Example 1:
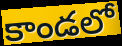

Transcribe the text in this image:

కాండలో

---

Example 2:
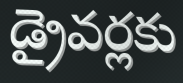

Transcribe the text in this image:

డ్రైవర్లకు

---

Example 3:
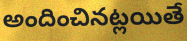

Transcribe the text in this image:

అందించినట్లయితే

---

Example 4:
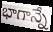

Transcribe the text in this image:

భాగాన్నే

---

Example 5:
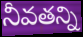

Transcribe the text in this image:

నీవతన్ని